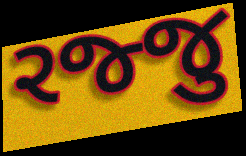
રજ્જુ